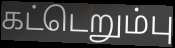
கட்டெறும்பு